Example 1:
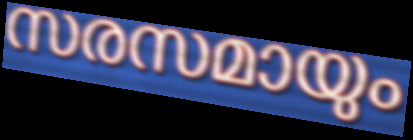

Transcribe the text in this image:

സരസമായും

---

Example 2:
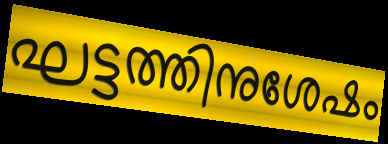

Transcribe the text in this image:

ഘട്ടത്തിനുശേഷം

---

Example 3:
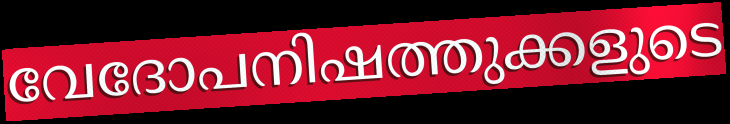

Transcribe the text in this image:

വേദോപനിഷത്തുക്കളുടെ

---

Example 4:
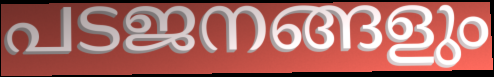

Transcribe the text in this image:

പടജനങ്ങളും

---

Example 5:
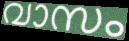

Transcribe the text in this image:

വാസം